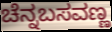
ಚೆನ್ನಬಸವಣ್ಣ